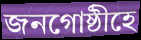
জনগোষ্ঠীহে